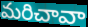
మరిచావా